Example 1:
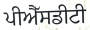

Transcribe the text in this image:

ਪੀਐੱਸਡੀਟੀ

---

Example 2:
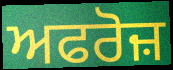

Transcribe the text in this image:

ਅਫਰੋਜ਼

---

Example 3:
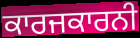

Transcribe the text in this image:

ਕਾਰਜਕਾਰਨੀ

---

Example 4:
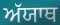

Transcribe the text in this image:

ਅੱਯਾਥ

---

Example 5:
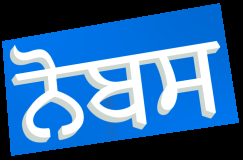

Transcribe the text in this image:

ਨੋਬਸ